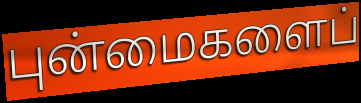
புன்மைகளைப்